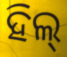
ହିଲ୍